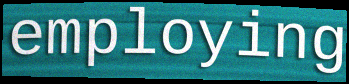
employing